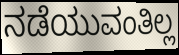
ನಡೆಯುವಂತಿಲ್ಲ